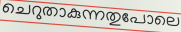
ചെറുതാകുന്നതുപോലെ